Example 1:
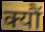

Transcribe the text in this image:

क्यौं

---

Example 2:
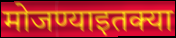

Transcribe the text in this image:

मोजण्याइतक्या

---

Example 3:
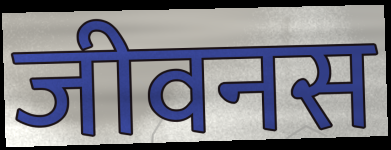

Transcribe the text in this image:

जीवनस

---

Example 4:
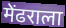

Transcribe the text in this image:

मेंढराला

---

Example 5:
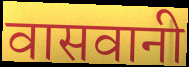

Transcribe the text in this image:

वासवानी